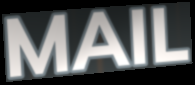
MAIL